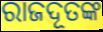
ରାଜଦୂତଙ୍କ